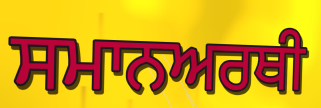
ਸਮਾਨਅਰਥੀ